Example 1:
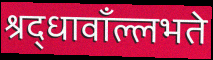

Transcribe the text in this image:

श्रद्धावाँल्लभते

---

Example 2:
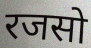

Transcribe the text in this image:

रजसो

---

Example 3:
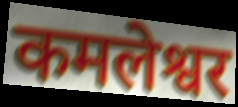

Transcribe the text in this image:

कमलेश्वर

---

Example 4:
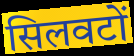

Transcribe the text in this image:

सिलवटों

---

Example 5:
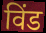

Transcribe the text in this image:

विंड